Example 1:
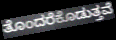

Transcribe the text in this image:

ತೊಂದರೆಕೊಡುತ್ತವೆ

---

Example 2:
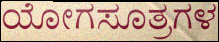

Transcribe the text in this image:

ಯೋಗಸೂತ್ರಗಳ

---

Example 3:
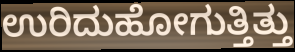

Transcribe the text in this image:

ಉರಿದುಹೋಗುತ್ತಿತ್ತು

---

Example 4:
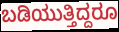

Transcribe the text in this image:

ಬಡಿಯುತ್ತಿದ್ದರೂ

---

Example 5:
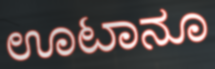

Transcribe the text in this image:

ಊಟಾನೂ